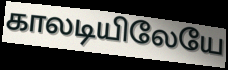
காலடியிலேயே